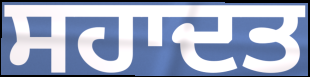
ਸਹਾਦਤ